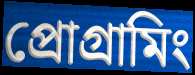
প্রোগ্রামিং